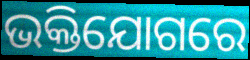
ଭକ୍ତିଯୋଗରେ